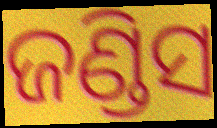
ଜଣ୍ଡିସ